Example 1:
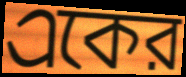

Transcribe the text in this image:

একের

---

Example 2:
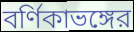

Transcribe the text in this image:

বর্ণিকাভঙ্গের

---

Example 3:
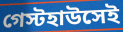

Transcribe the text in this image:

গেস্টহাউসেই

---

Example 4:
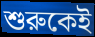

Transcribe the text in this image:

শুরুকেই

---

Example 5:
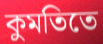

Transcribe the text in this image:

কুমতিতে